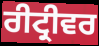
ਰੀਟ੍ਰੀਵਰ